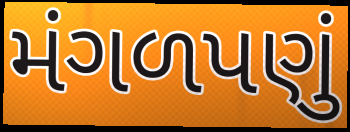
મંગળપણું